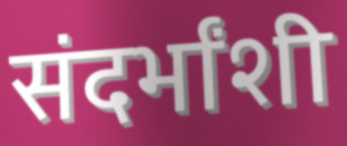
संदर्भांशी